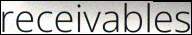
receivables